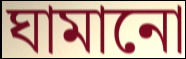
ঘামানো